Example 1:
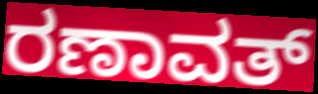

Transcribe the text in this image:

ರಣಾವತ್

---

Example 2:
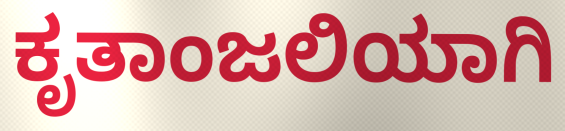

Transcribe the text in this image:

ಕೃತಾಂಜಲಿಯಾಗಿ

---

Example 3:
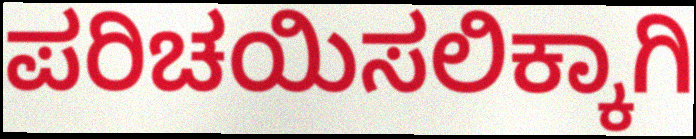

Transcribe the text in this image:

ಪರಿಚಯಿಸಲಿಕ್ಕಾಗಿ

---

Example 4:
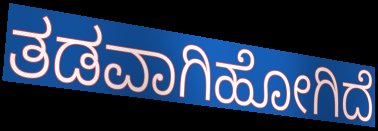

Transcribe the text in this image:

ತಡವಾಗಿಹೋಗಿದೆ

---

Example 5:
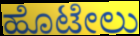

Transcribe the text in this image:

ಹೊಟೇಲು